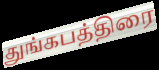
துங்கபத்திரை